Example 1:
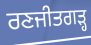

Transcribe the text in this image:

ਰਣਜੀਤਗੜ੍ਹ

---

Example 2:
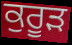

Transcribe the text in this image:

ਕੁਰੂੜ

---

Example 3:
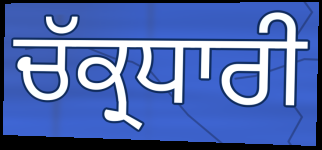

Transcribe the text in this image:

ਚੱਕ੍ਰਧਾਰੀ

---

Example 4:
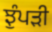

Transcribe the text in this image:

ਝੁੰਪੜੀ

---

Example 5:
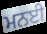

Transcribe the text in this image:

ਮਨਈ